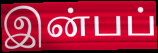
இன்பப்